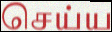
செய்ய